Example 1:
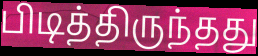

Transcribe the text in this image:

பிடித்திருந்தது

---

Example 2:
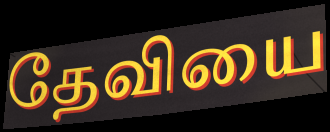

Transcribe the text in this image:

தேவியை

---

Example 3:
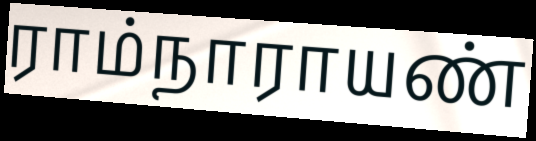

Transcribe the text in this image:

ராம்நாராயண்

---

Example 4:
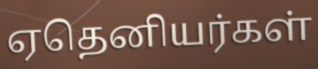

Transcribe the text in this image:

ஏதெனியர்கள்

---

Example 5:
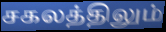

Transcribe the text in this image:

சகலத்திலும்